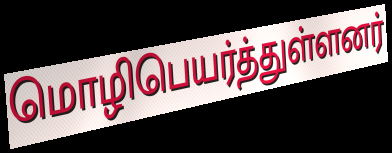
மொழிபெயர்த்துள்ளனர்